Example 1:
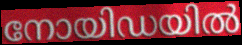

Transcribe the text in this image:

നോയിഡയിൽ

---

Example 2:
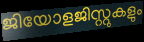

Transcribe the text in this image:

ജിയോളജിസ്റ്റുകളും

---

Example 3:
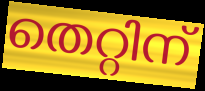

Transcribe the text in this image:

തെറ്റിന്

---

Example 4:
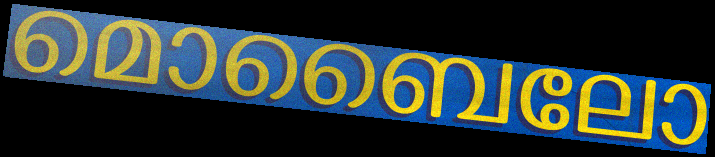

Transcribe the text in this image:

മൊബൈലോ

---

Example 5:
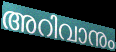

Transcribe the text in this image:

അറിവാനും